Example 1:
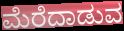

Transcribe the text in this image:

ಮೆರೆದಾಡುವ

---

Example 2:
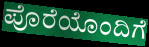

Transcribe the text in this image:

ಪೊರೆಯೊಂದಿಗೆ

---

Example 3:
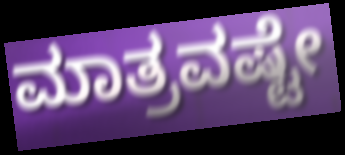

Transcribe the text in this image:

ಮಾತ್ರವಷ್ಟೇ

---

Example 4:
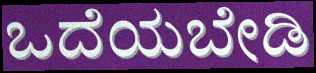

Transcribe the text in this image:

ಒದೆಯಬೇಡಿ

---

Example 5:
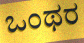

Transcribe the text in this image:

ಒಂಥರ